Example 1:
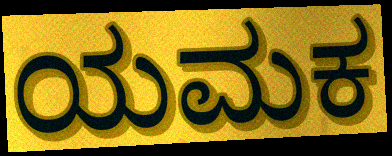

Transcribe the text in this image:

ಯಮಕ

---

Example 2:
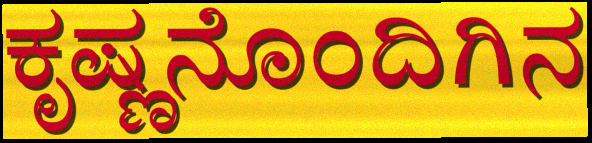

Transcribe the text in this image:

ಕೃಷ್ಣನೊಂದಿಗಿನ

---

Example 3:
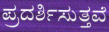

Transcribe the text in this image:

ಪ್ರದರ್ಶಿಸುತ್ತವೆ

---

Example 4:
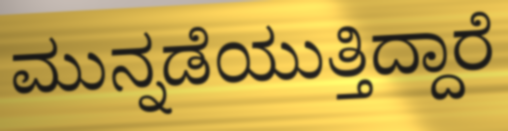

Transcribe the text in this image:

ಮುನ್ನಡೆಯುತ್ತಿದ್ದಾರೆ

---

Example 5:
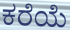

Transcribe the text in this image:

ಕರೆಯೆ